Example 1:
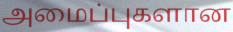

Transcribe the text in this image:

அமைப்புகளான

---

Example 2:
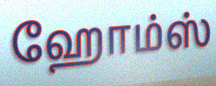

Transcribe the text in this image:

ஹோம்ஸ்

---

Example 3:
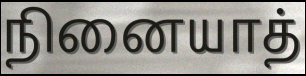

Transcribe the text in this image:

நினையாத்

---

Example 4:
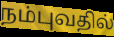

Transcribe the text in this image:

நம்புவதில்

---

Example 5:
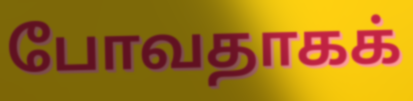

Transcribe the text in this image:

போவதாகக்